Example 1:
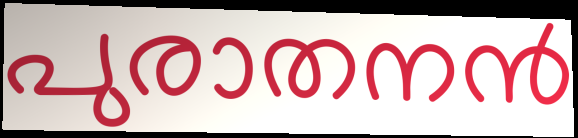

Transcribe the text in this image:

പുരാതനൻ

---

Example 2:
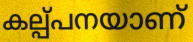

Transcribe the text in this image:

കല്പ്പനയാണ്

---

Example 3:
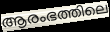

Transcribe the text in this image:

ആരംഭത്തിലെ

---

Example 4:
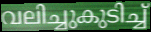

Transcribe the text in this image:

വലിച്ചുകുടിച്ച്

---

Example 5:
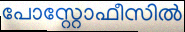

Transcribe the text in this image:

പോസ്റ്റോഫീസിൽ